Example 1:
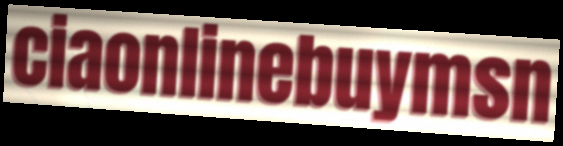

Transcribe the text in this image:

ciaonlinebuymsn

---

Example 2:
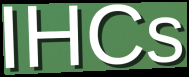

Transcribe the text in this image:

IHCs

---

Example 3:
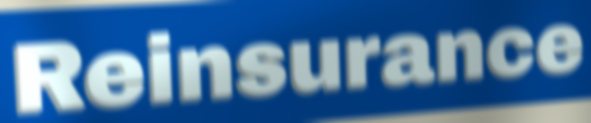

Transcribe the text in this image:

Reinsurance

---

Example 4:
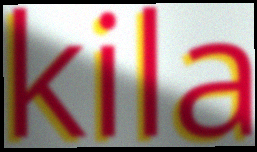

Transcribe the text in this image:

kila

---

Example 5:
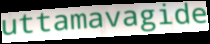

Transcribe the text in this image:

uttamavagide